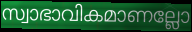
സ്വാഭാവികമാണല്ലോ